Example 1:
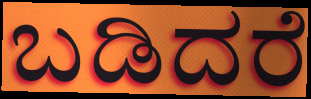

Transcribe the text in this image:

ಬಡಿದರೆ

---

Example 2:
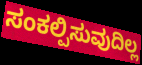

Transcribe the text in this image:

ಸಂಕಲ್ಪಿಸುವುದಿಲ್ಲ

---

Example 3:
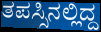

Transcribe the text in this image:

ತಪಸ್ಸಿನಲ್ಲಿದ್ದ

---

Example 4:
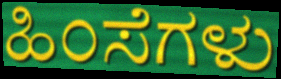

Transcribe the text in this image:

ಹಿಂಸೆಗಳು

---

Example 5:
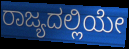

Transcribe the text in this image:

ರಾಜ್ಯದಲ್ಲಿಯೇ